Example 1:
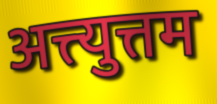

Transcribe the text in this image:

अत्त्युत्तम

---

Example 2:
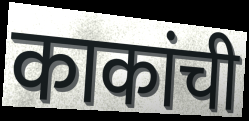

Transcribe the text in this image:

काकांची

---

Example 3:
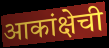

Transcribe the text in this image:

आकांक्षेची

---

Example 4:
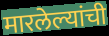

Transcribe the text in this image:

मारलेल्यांची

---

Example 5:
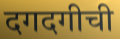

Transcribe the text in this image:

दगदगीची